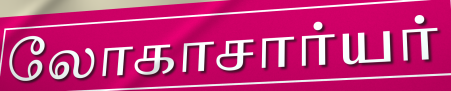
லோகாசார்யர்